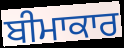
ਬੀਮਾਕਾਰ